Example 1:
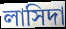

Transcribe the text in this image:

লাসিদা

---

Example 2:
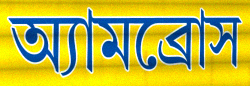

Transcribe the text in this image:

অ্যামব্রোস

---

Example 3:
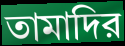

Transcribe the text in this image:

তামাদির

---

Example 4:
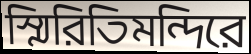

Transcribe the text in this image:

স্মিরিতিমন্দিরে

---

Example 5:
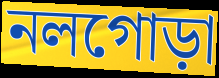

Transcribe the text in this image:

নলগোড়া